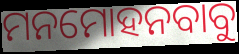
ମନମୋହନବାବୁ